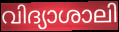
വിദ്യാശാലി